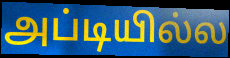
அப்டியில்ல